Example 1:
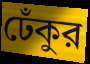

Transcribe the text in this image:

ঢেঁকুর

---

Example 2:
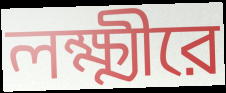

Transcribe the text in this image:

লক্ষ্মীরে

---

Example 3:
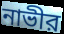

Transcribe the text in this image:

নাভীর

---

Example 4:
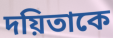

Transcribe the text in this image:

দয়িতাকে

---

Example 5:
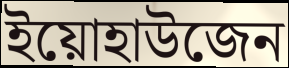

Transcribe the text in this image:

ইয়োহাউজেন